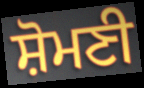
ਸ਼ੋਮਣੀ